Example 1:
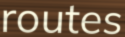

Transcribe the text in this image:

routes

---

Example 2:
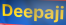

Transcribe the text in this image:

Deepaji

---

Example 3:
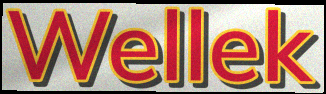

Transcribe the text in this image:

Wellek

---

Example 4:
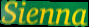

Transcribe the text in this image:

Sienna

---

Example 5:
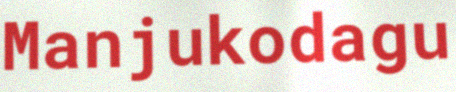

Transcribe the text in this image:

Manjukodagu